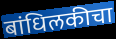
बांधिलकीचा